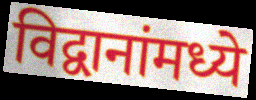
विद्वानांमध्ये